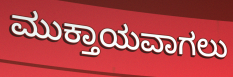
ಮುಕ್ತಾಯವಾಗಲು